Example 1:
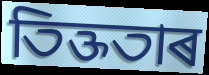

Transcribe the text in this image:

তিক্ততাৰ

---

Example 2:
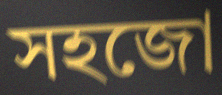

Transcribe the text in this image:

সহজো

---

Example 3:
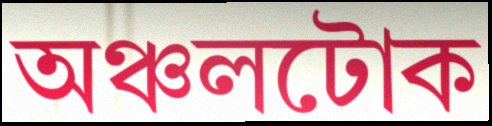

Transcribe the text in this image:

অঞ্চলটোক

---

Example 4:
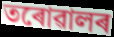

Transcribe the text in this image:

তৰোৱালৰ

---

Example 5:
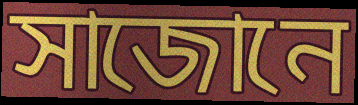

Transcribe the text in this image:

সাজোনে